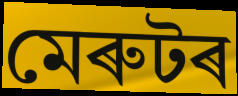
মেৰুটৰ